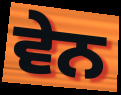
ਵੇਨ